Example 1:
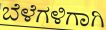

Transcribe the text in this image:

ಬೆಳೆಗಳಿಗಾಗಿ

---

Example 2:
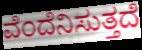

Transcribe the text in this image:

ವೆಂದೆನಿಸುತ್ತದೆ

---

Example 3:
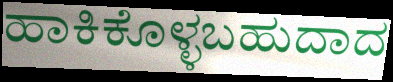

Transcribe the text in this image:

ಹಾಕಿಕೊಳ್ಳಬಹುದಾದ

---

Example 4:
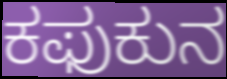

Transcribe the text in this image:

ಕಫುಕುನ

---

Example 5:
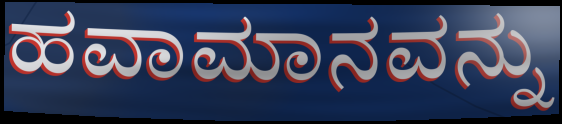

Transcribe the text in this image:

ಹವಾಮಾನವನ್ನು